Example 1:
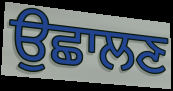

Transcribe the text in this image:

ਉਛਾਲਣ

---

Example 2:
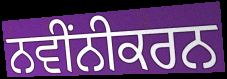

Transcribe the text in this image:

ਨਵੀਂਨੀਕਰਨ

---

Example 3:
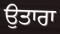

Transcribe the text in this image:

ਉਤਾਰਾ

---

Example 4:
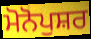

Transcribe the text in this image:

ਮੋਨੋਪੁਸ਼ਰ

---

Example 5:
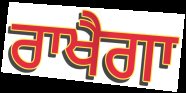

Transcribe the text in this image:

ਰਾਖੈਗਾ